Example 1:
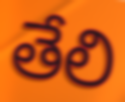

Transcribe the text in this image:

తేలి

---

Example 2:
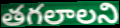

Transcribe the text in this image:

తగలాలని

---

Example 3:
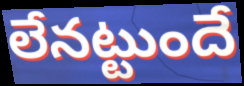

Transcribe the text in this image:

లేనట్టుందే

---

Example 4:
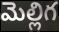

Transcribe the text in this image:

మెల్లిగ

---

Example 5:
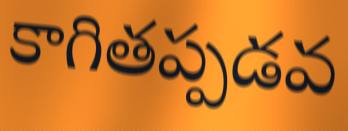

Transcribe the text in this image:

కాగితప్పడవ